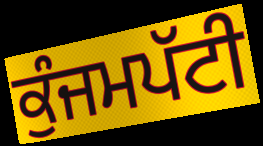
ਕੁੰਜਮਪੱਟੀ